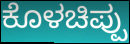
ಕೊಳಚಿಪ್ಪು